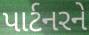
પાર્ટનરને